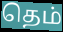
தெம்